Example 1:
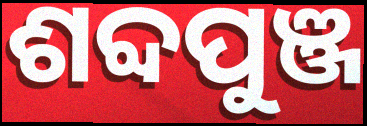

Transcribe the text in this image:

ଶବ୍ଦପୁଞ୍ଜ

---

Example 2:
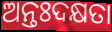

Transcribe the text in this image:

ଅନ୍ତଃଦକ୍ଷତା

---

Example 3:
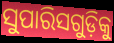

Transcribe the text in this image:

ସୁପାରିସଗୁଡ଼ିକୁ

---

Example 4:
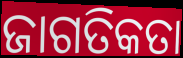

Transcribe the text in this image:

ଜାଗତିକତା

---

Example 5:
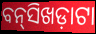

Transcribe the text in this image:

ବନ୍‌ସିଖଡ଼ାଟା